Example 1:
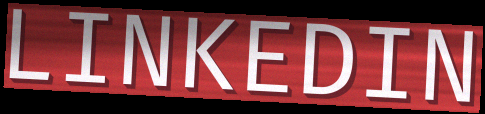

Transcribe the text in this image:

LINKEDIN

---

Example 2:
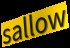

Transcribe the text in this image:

sallow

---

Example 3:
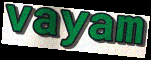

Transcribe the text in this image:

vayam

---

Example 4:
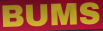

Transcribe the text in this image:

BUMS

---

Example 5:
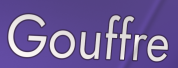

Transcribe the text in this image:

Gouffre